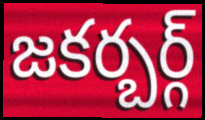
జకర్బర్గ్